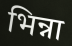
भिन्ना